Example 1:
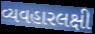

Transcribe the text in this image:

વ્યવહારલક્ષી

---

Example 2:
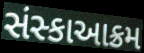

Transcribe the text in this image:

સંસ્કાઆક્રમ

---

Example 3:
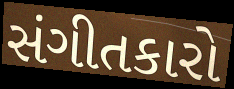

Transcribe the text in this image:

સંગીતકારો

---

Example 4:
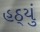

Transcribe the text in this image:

હઠ્યું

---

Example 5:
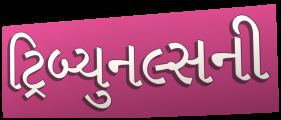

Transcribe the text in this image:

ટ્રિબ્યુનલ્સની